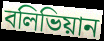
বলিভিয়ান